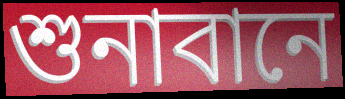
শুনাবানে